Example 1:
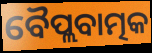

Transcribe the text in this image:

ବୈପ୍ଲବାତ୍ମକ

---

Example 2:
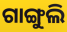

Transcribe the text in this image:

ଗାଙ୍ଗୁଲି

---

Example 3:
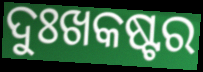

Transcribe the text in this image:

ଦୁଃଖକଷ୍ଟର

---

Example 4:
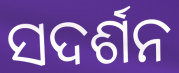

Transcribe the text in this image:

ସଦର୍ଶନ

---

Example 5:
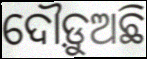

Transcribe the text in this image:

ଦୌଡ଼ୁଅଛି